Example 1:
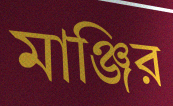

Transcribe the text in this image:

মাঞ্জির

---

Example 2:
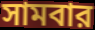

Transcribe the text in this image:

সামবার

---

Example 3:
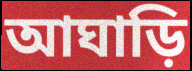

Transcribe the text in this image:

আঘাড়ি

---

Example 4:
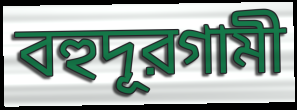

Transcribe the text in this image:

বহুদূরগামী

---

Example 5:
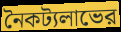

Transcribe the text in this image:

নৈকট্যলাভের